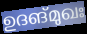
ഉദങ്മുഖഃ